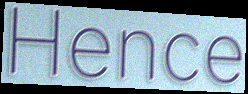
Hence